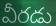
వీరడు